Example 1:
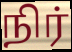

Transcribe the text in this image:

நிர்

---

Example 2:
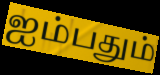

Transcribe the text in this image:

ஐம்பதும்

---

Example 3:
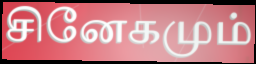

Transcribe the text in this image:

சினேகமும்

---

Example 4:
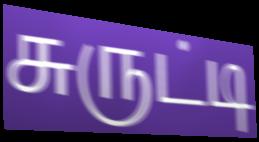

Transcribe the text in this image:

சுருட்டி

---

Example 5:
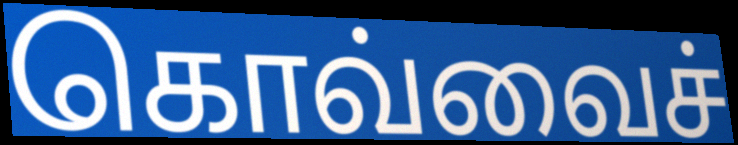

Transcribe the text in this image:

கொவ்வைச்